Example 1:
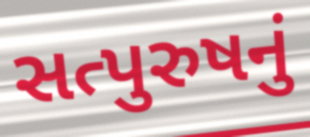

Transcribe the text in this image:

સત્પુરુષનું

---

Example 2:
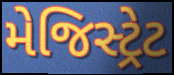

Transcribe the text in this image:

મેજિસ્ટ્રેટ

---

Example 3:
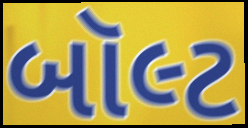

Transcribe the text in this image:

બૉલ્ટ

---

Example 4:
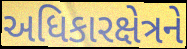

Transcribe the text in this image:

અધિકારક્ષેત્રને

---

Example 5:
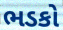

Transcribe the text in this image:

ભડકો